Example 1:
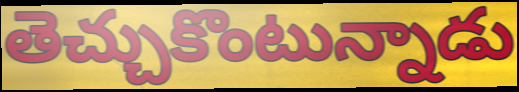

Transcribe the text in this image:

తెచ్చుకొంటున్నాడు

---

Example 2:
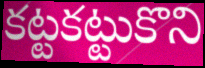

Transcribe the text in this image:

కట్టకట్టుకొని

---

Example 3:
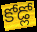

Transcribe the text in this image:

కోడ్లో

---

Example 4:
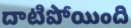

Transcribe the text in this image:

దాటిపోయింది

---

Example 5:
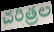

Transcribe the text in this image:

చరిత్రల